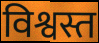
विश्वस्त